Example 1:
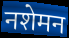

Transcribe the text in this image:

नशेमन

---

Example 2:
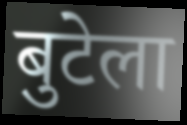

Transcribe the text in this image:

बुटेला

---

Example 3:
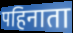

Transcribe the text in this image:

पहिनाता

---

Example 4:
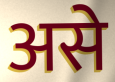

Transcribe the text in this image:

असे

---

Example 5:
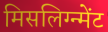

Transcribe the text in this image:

मिसलिग्न्मेंट